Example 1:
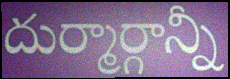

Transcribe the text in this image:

దుర్మార్గాన్నీ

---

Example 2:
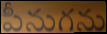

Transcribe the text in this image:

పీనుగను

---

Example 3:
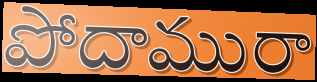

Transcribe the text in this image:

పోదామురా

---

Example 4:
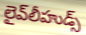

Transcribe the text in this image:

లైవ్‌లీహుడ్స్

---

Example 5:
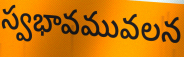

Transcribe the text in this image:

స్వభావమువలన